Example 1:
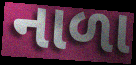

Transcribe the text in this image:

નાળા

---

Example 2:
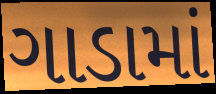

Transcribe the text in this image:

ગાડામાં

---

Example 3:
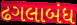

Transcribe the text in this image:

ઢગલાબંધ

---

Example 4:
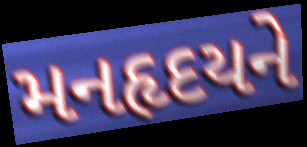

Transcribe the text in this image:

મનહૃદયને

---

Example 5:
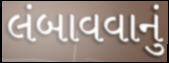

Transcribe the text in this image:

લંબાવવાનું